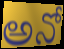
అనో